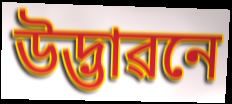
উদ্ভাৱনে